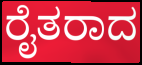
ರೈತರಾದ